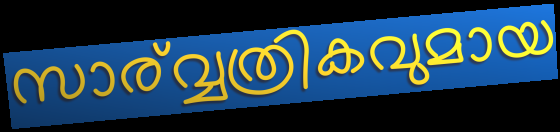
സാര്വ്വത്രികവുമായ